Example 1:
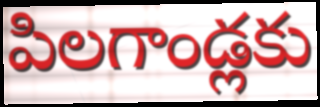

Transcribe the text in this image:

పిలగాండ్లకు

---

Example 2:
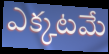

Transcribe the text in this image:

ఎక్కటమే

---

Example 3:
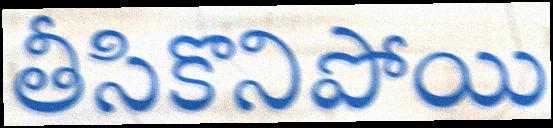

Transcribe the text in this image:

తీసికొనిపోయి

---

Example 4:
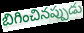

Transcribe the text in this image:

బిగించినప్పుడు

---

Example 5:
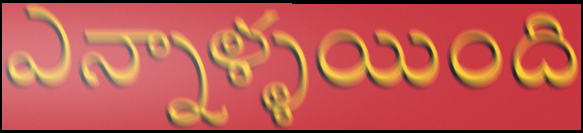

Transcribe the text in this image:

ఎన్నాళ్ళయింది